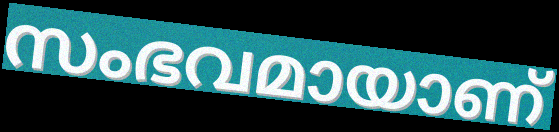
സംഭവമായാണ്